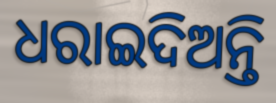
ଧରାଇଦିଅନ୍ତି